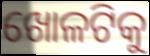
ଖୋଳଟିକୁ